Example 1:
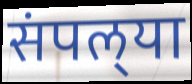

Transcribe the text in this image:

संपल्या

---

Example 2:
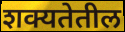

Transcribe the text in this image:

शक्यतेतील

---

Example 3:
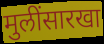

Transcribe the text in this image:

मुलींसारखा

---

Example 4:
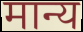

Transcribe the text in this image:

मान्य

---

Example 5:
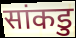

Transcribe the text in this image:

सांकडु